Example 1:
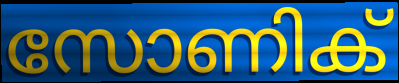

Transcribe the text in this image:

സോണിക്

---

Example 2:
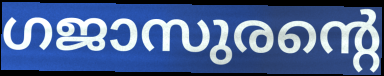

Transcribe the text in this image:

ഗജാസുരന്റെ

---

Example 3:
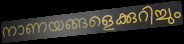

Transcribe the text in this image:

നാണയങ്ങളെക്കുറിച്ചും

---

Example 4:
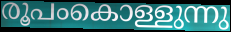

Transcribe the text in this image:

രൂപംകൊള്ളുന്നു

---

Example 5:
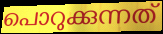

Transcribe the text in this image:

പൊറുക്കുന്നത്